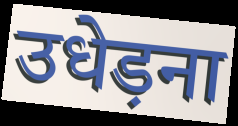
उधेड़ना